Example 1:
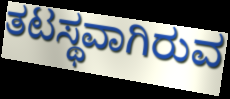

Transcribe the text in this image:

ತಟಸ್ಥವಾಗಿರುವ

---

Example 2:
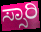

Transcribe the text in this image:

ಸ್ಸಾರಿ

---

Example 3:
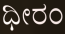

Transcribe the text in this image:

ಧೀರಂ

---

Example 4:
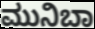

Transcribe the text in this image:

ಮುನಿಬಾ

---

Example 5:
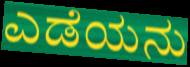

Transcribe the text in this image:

ಎಡೆಯನು